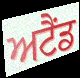
ਅਟੈਂਡ